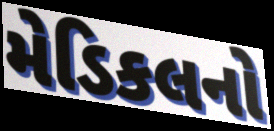
મેડિકલનો